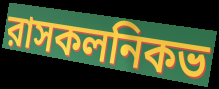
রাসকলনিকভ